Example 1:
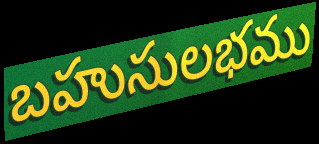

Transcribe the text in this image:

బహుసులభము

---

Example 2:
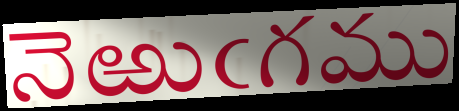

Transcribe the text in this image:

నెఱుఁగము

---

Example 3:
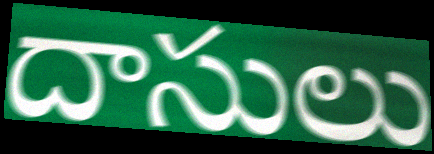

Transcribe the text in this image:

దాసులు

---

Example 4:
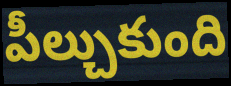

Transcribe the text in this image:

పీల్చుకుంది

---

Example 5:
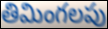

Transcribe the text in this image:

తిమింగలపు